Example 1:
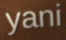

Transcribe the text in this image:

yani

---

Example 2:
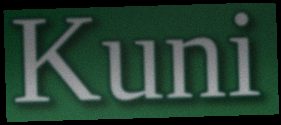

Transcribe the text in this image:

Kuni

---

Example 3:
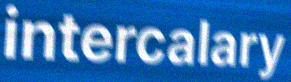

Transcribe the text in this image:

intercalary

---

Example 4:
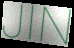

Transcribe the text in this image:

JIN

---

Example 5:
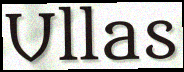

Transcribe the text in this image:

Ullas